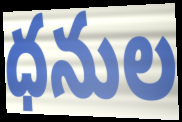
ధనుల